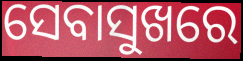
ସେବାସୁଖରେ